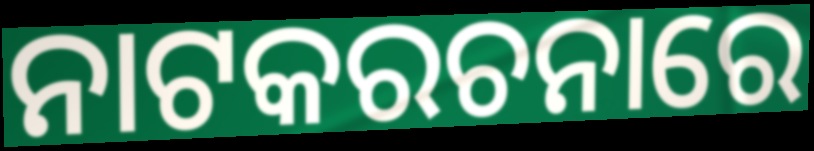
ନାଟକରଚନାରେ